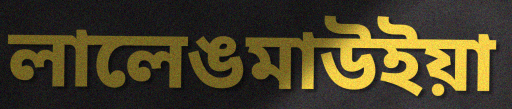
লালেঙমাউইয়া